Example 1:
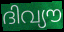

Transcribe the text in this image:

ദിവ്യൗ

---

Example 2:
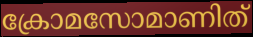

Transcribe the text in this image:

ക്രോമസോമാണിത്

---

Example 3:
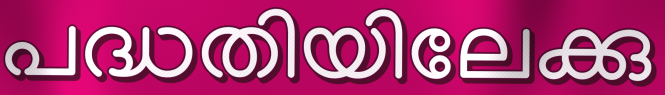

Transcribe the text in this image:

പദ്ധതിയിലേക്കു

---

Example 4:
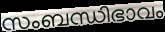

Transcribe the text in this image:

സംബന്ധിഭാവം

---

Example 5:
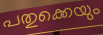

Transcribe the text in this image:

പതുക്കെയും